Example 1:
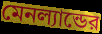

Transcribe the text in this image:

মেনল্যান্ডের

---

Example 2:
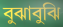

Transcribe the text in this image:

বুঝাবুঝি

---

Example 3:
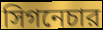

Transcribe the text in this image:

সিগনেচার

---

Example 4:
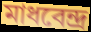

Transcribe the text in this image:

মাধবেন্দ্র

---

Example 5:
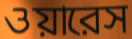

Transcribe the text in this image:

ওয়ারেস